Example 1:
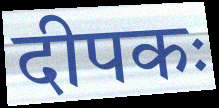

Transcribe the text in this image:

दीपकः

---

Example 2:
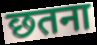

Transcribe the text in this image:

छतना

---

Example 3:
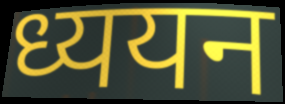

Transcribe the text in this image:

ध्ययन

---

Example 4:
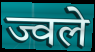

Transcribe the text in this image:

ज्वले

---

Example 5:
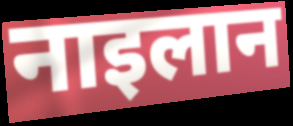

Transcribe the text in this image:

नाइलान